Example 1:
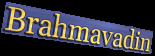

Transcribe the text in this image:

Brahmavadin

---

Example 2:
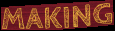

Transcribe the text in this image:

MAKING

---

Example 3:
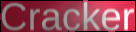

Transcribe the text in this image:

Cracker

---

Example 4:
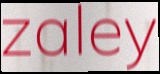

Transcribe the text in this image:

zaley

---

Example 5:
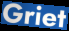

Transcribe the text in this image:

Griet